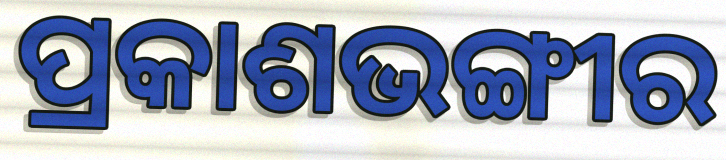
ପ୍ରକାଶଭଙ୍ଗୀର